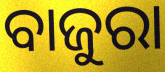
ବାଜୁରା